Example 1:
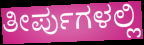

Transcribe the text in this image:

ತೀರ್ಪುಗಳಲ್ಲಿ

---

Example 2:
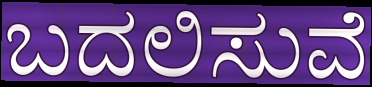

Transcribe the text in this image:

ಬದಲಿಸುವೆ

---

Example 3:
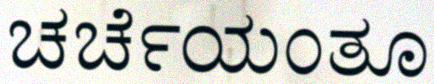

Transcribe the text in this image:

ಚರ್ಚೆಯಂತೂ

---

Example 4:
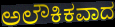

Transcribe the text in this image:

ಅಲೌಕಿಕವಾದ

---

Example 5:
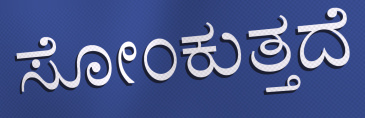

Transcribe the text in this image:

ಸೋಂಕುತ್ತದೆ